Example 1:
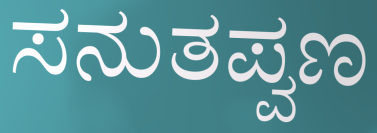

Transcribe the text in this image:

ಸನುತಪ್ವಣ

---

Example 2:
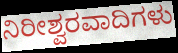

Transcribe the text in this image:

ನಿರೀಶ್ವರವಾದಿಗಳು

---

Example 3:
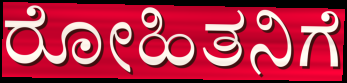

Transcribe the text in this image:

ರೋಹಿತನಿಗೆ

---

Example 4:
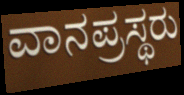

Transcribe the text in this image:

ವಾನಪ್ರಸ್ಥರು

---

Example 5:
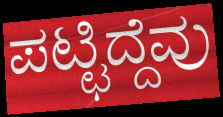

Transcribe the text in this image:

ಪಟ್ಟಿದ್ದೆವು